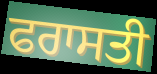
ਫਰਾਸਤੀ